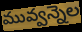
మువ్వన్నెల